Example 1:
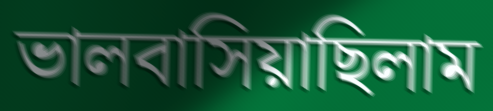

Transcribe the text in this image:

ভালবাসিয়াছিলাম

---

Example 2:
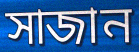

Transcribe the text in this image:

সাজান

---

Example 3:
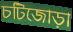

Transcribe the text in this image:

চটিজোড়া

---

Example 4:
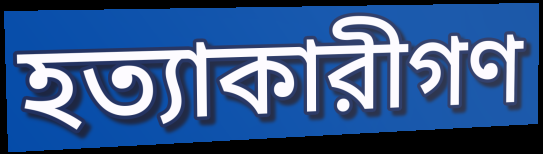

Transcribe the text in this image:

হত্যাকারীগণ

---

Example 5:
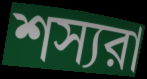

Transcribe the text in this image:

শস্যরা